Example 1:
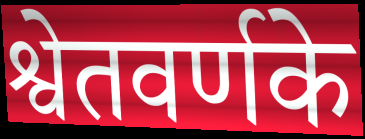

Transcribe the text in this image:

श्वेतवर्णके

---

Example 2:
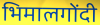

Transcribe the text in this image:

भिमालगोंदी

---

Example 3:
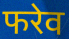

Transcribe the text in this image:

फरेव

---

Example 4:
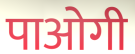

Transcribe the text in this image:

पाओगी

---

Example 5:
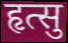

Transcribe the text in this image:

हृत्सु